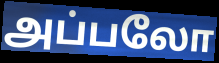
அப்பலோ